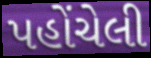
પહોંચેલી